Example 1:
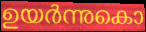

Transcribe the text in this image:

ഉയർന്നുകൊ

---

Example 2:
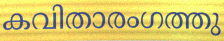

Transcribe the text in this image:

കവിതാരംഗത്തു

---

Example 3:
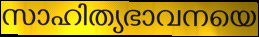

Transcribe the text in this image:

സാഹിത്യഭാവനയെ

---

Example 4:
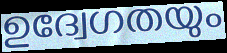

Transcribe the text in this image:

ഉദ്വേഗതയും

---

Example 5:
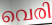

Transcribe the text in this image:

വെരി